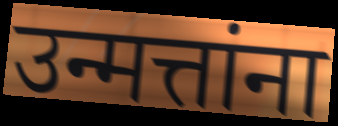
उन्मत्तांना